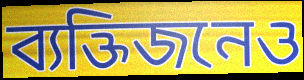
ব্যক্তিজনেও